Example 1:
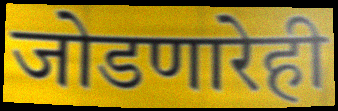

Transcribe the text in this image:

जोडणारेही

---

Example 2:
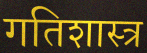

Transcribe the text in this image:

गतिशास्त्र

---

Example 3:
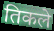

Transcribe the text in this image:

तिकले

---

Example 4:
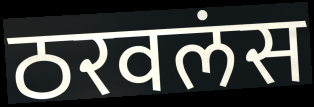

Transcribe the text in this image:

ठरवलंस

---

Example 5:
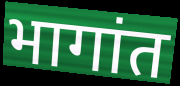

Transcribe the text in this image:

भागांत